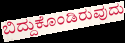
ಬಿದ್ದುಕೊಂಡಿರುವುದು